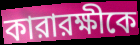
কারারক্ষীকে